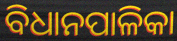
ବିଧାନପାଳିକା